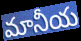
మానీయ